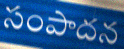
సంపాదన